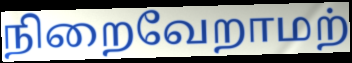
நிறைவேறாமற்